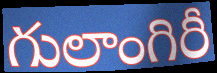
గులాంగిరీ